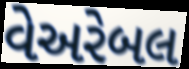
વેઅરેબલ